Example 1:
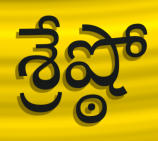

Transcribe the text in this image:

శ్రేష్ఠో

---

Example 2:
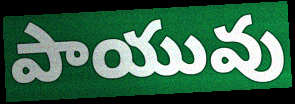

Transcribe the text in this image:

పాయువు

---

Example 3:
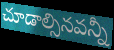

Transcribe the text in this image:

చూడాల్సినవన్నీ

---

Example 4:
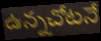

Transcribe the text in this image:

ఉన్నచోటనే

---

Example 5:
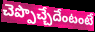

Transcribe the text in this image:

చెప్పొచ్చేదేంటంటే